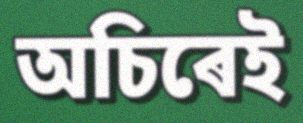
অচিৰেই